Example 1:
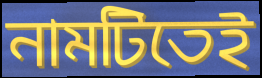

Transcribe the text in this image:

নামটিতেই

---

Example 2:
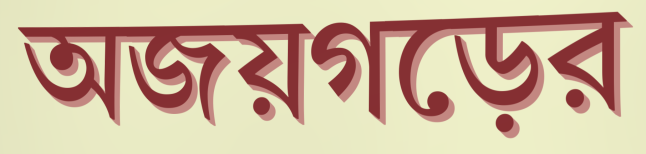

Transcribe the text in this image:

অজয়গড়ের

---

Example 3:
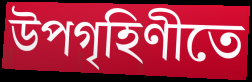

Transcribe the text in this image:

উপগৃহিণীতে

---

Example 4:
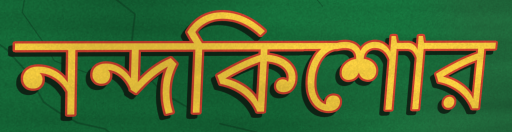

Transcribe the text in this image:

নন্দকিশোর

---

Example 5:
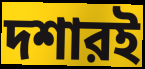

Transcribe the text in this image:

দশারই